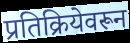
प्रतिक्रियेवरून